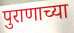
पुराणाच्या